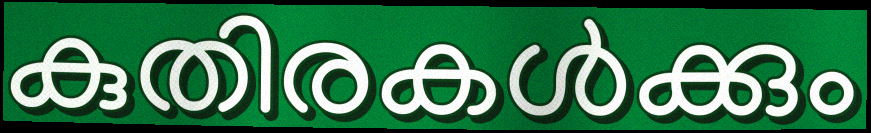
കുതിരകൾക്കും